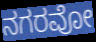
ನಗರವೋ